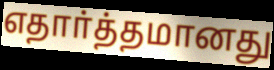
எதார்த்தமானது